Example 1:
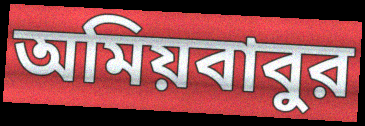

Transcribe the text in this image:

অমিয়বাবুর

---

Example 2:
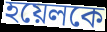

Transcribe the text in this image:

হয়েলকে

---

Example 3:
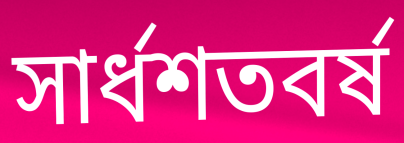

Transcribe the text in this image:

সার্ধশতবর্ষ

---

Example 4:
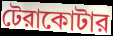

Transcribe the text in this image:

টেরাকোটার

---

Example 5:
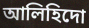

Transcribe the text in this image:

আলিহিদো